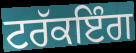
ਟਰੱਕਇੰਗ